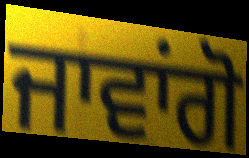
ਜਾਵਾਂਗੋ